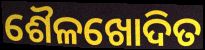
ଶୈଳଖୋଦିତ